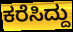
ಕರೆಸಿದ್ದು